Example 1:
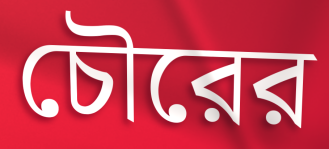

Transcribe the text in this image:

চৌরের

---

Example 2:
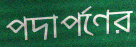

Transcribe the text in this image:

পদার্পণের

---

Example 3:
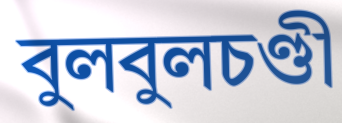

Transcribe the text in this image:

বুলবুলচণ্ডী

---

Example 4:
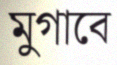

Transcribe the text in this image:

মুগাবে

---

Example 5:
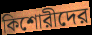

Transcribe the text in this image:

কিশোরীদের